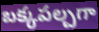
బక్కపల్చగా